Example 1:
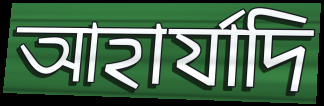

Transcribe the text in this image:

আহার্যাদি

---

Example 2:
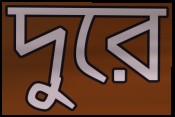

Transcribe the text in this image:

দুরে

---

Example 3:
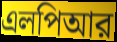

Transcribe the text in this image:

এলপিআর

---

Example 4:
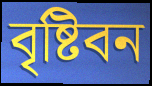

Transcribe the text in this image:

বৃষ্টিবন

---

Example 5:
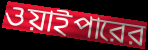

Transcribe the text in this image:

ওয়াইপারের